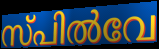
സ്പിൽവേ